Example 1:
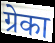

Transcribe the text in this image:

ग्रेका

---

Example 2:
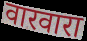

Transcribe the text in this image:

वारवारा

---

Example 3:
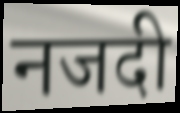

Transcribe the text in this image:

नजदी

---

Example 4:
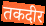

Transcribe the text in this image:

तकदीर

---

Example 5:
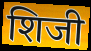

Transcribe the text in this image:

शिजी